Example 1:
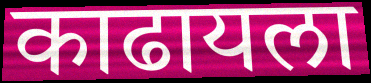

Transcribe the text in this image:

काढायला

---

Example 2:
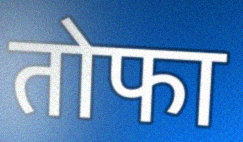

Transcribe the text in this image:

तोफा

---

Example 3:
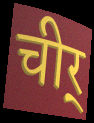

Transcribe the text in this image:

चीर्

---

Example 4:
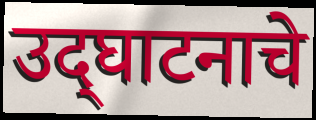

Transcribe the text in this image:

उद्‌घाटनाचे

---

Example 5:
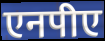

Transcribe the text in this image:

एनपीए